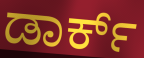
ಡಾರ್ಕ್